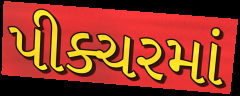
પીક્ચરમાં